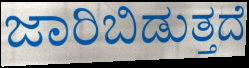
ಜಾರಿಬಿಡುತ್ತದೆ